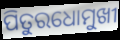
ପିତୁରଧୋମୁଖୀ